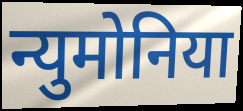
न्युमोनिया